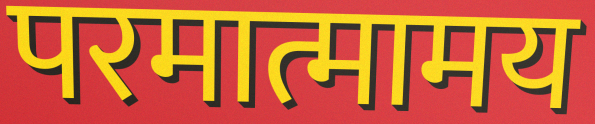
परमात्मामय